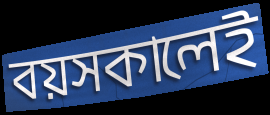
বয়সকালেই